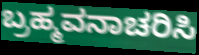
ಬ್ರಹ್ಮವನಾಚರಿಸಿ